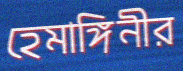
হেমাঙ্গিনীর